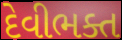
દેવીભક્ત